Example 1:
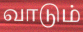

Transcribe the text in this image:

வாடும்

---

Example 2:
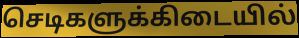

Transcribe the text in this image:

செடிகளுக்கிடையில்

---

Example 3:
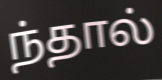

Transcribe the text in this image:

ந்தால்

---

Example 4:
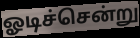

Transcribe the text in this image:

ஓடிச்சென்று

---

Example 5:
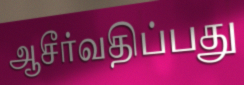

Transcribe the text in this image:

ஆசீர்வதிப்பது